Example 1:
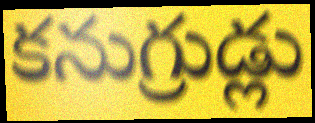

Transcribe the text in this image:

కనుగ్రుడ్లు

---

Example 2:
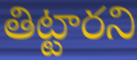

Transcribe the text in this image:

తిట్టారని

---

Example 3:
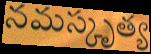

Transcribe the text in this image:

నమస్కృత్య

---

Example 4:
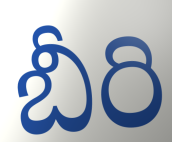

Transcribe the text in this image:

బీరి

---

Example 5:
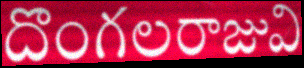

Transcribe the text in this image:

దొంగలరాజువి